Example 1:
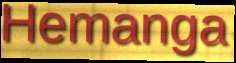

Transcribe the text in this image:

Hemanga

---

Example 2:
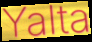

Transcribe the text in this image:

Yalta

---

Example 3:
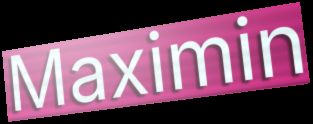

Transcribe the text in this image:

Maximin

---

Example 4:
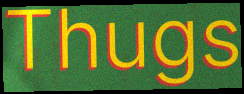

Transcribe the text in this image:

Thugs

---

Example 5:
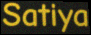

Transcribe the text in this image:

Satiya